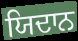
ਯਿਦਾਨ